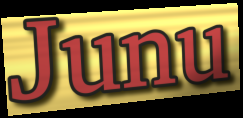
Junu